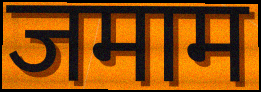
जमाम